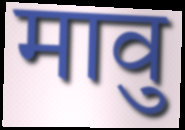
मावु